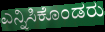
ಎನ್ನಿಸಿಕೊಂಡರು